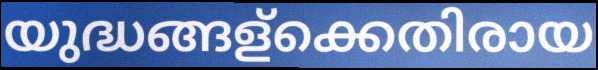
യുദ്ധങ്ങള്ക്കെതിരായ